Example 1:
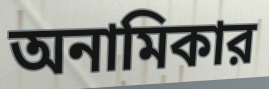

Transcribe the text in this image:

অনামিকার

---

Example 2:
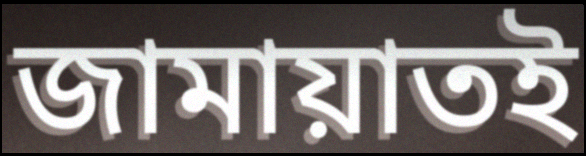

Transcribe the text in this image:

জামায়াতই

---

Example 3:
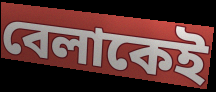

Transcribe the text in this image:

বেলাকেই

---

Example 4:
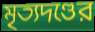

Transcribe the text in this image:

মৃত্যদণ্ডের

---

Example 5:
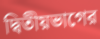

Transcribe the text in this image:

দ্বিতীয়ভাগের